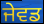
ਜੇਵਡ